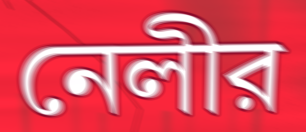
নেলীর